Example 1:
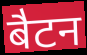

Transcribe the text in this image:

बैटन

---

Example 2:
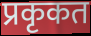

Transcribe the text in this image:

प्रकृकत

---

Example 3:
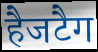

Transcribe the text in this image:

हैजटैग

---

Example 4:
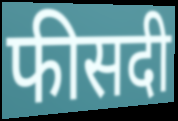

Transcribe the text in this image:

फीसदी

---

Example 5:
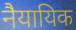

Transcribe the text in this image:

नैयायिक